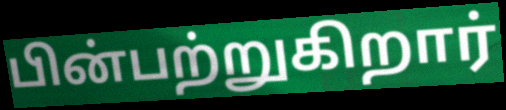
பின்பற்றுகிறார்